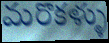
మరొకళ్ళు